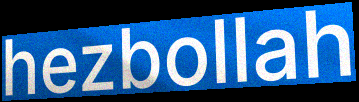
hezbollah